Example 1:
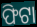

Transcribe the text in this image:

ଫିଟା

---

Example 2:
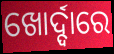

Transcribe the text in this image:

ଖୋର୍ଦ୍ଦାରେ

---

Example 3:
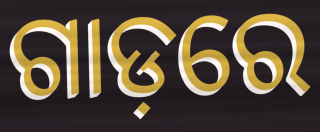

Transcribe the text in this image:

ଗାଡ଼ରେ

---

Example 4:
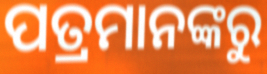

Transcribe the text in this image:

ପତ୍ରମାନଙ୍କରୁ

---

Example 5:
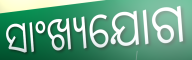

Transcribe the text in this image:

ସାଂଖ୍ଯଯୋଗ